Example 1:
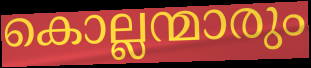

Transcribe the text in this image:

കൊല്ലന്മാരും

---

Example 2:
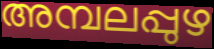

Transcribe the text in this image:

അമ്പലപ്പുഴ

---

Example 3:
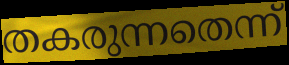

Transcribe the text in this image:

തകരുന്നതെന്ന്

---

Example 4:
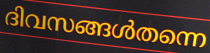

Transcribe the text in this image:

ദിവസങ്ങൾതന്നെ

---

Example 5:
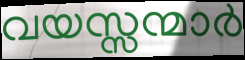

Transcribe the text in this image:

വയസ്സന്മാർ